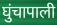
घुंचापाली